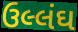
ઉલ્લંઘ